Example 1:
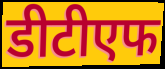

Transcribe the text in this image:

डीटीएफ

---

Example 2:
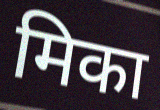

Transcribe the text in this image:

मिका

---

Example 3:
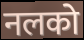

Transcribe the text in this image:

नलको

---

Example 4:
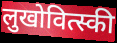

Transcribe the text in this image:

लुखोवित्स्की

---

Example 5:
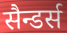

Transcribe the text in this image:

सैन्डर्स